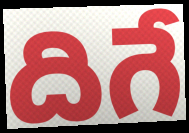
దిగే